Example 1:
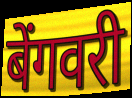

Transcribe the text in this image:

बेंगवरी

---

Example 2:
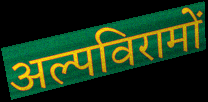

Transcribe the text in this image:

अल्पविरामों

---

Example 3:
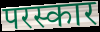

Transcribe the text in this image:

परस्कार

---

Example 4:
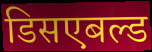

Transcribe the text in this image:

डिसएबल्ड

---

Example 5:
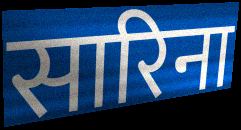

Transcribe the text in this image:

सारिना